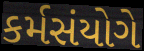
કર્મસંયોગે